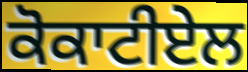
ਕੋਕਾਟੀਏਲ